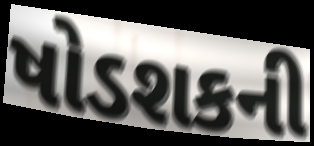
ષોડશકની